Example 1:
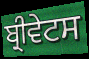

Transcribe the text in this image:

ਬ੍ਰੀਵੇਟਸ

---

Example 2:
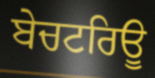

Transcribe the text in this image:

ਬੇਚਟਰਿਊ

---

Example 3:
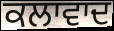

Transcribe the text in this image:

ਕਲਾਵਾਦ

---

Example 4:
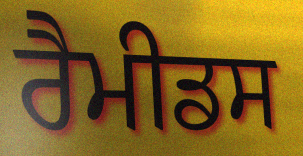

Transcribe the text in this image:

ਰੈਮੀਡਸ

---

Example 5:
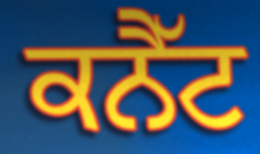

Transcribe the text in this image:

ਕਨੈੱਟ